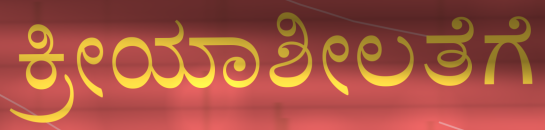
ಕ್ರೀಯಾಶೀಲತೆಗೆ